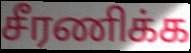
சீரணிக்க